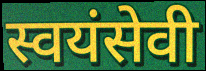
स्वयंसेवी